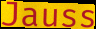
Jauss